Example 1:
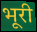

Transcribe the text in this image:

भूरी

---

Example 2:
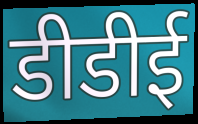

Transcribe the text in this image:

डीडीई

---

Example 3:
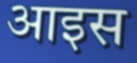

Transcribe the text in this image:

आइस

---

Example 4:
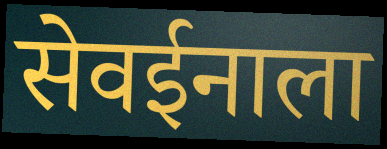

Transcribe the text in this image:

सेवईनाला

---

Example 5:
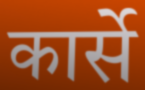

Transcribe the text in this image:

कार्से